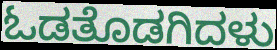
ಓಡತೊಡಗಿದಳು